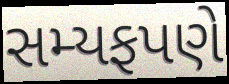
સમ્યફપણે